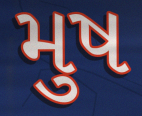
મુષ